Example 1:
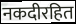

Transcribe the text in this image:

नकदीरहित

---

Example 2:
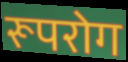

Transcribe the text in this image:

रूपरोग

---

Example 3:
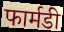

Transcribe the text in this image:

फार्मडी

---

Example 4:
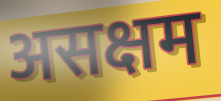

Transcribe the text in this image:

असक्षम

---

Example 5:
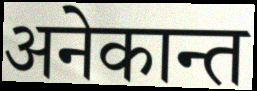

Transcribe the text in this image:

अनेकान्त